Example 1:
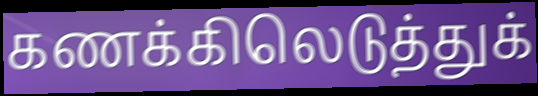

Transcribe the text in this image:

கணக்கிலெடுத்துக்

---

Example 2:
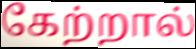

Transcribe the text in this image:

கேற்றால்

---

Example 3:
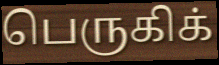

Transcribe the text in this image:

பெருகிக்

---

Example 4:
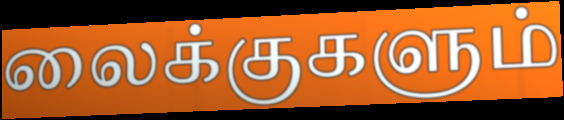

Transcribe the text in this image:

லைக்குகளும்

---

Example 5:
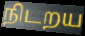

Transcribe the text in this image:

நிடறய